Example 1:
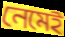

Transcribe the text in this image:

নেমেই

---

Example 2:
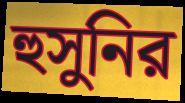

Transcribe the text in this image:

হুসুনির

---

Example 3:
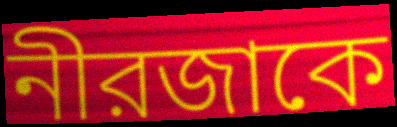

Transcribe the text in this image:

নীরজাকে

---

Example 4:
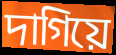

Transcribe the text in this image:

দাগিয়ে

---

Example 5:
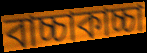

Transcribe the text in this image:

বাচ্চাকাচ্চা